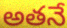
అతనే